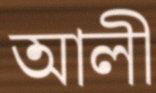
আলী